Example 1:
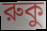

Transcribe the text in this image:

রুকু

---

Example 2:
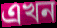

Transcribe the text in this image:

এখন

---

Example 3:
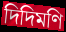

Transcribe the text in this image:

দিদিমণি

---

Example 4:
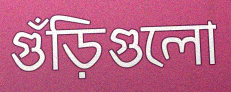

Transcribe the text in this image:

গুঁড়িগুলো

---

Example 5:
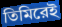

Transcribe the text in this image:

তিমিরেই